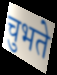
चुभते